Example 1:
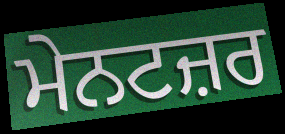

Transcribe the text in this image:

ਮੇਨਟਜ਼ਰ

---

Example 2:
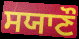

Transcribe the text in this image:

ਸਯਾਣੌ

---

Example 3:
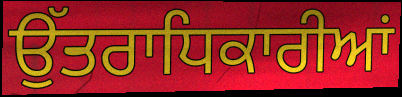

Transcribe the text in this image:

ਉੱਤਰਾਧਿਕਾਰੀਆਂ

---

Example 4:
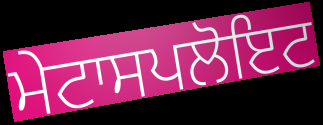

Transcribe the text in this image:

ਮੇਟਾਸਪਲੋਇਟ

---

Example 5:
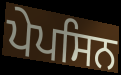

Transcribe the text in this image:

ਪੇਪਸਿਨ